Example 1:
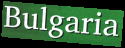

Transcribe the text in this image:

Bulgaria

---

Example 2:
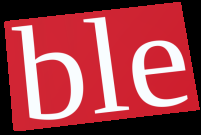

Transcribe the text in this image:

ble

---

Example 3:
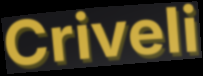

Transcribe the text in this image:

Criveli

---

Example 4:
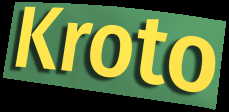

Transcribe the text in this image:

Kroto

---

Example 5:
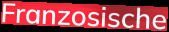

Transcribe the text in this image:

Franzosische